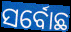
ସର୍ବୋଛ